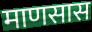
माणसास